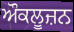
ਔਕਲੂਜ਼ਨ